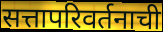
सत्तापरिवर्तनाची